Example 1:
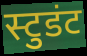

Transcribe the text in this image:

स्टुडंट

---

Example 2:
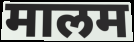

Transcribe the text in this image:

मालम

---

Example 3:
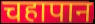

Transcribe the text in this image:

चहापान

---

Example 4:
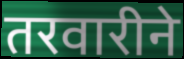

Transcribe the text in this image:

तरवारीने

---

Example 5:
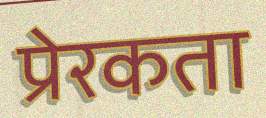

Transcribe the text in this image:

प्रेरकता